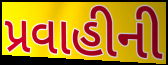
પ્રવાહીની